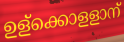
ഉള്ക്കൊളളാന്